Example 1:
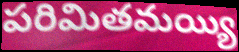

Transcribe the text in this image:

పరిమితమయ్యి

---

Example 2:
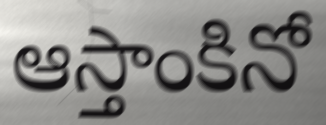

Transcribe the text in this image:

ఆస్తాంకినో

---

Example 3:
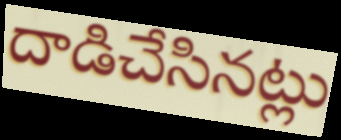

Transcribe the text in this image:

దాడిచేసినట్లు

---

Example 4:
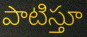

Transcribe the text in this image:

పాటిస్తూ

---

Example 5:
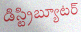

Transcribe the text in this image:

డిస్ట్రిబ్యూటర్